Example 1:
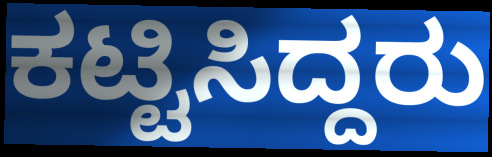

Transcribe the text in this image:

ಕಟ್ಟಿಸಿದ್ದರು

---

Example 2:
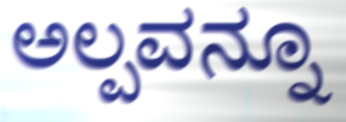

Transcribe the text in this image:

ಅಲ್ಪವನ್ನೂ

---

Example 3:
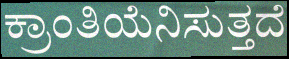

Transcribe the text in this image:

ಕ್ರಾಂತಿಯೆನಿಸುತ್ತದೆ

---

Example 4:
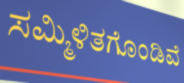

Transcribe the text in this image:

ಸಮ್ಮಿಳಿತಗೊಂಡಿವೆ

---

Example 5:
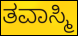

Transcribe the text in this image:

ತವಾಸ್ಮಿ